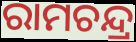
ରାମଚନ୍ଦ୍ର